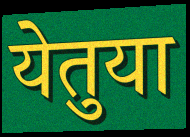
येतुया